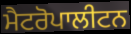
ਮੈਟਰੋਪਾਲੀਟਨ